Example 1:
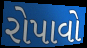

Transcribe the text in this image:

રોપાવો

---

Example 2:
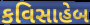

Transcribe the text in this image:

કવિસાહેબ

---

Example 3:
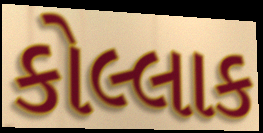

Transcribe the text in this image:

કોલ્લાક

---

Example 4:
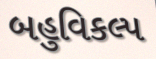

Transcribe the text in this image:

બહુવિકલ્પ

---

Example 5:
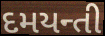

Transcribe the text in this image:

દમયન્તી